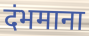
दंभमाना